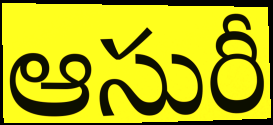
ఆసురీ